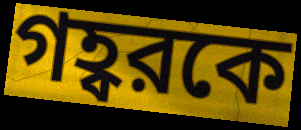
গহ্বরকে